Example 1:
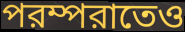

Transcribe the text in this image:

পরম্পরাতেও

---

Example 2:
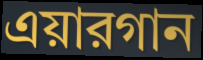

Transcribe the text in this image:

এয়ারগান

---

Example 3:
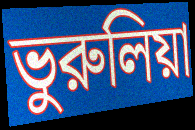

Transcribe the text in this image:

ভুরুলিয়া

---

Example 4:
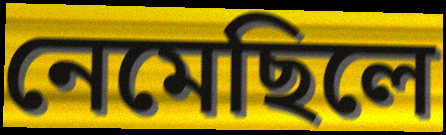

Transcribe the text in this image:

নেমেছিলে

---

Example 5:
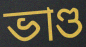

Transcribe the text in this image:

ভাণ্ড